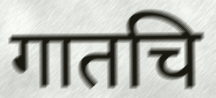
गातचि